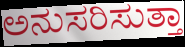
ಅನುಸರಿಸುತ್ತಾ